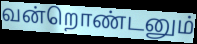
வன்றொண்டனும்